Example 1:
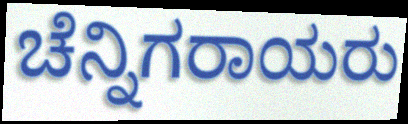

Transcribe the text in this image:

ಚೆನ್ನಿಗರಾಯರು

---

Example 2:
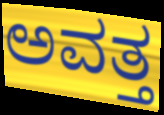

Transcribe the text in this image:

ಅವತ್ತ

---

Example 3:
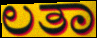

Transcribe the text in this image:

ಲತಾ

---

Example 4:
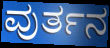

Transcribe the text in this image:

ವುರ್ತನ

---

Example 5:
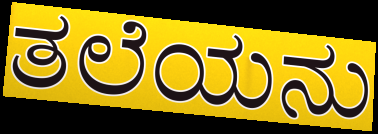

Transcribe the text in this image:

ತಲೆಯನು